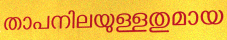
താപനിലയുള്ളതുമായ